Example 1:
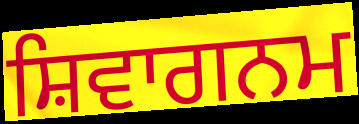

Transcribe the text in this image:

ਸ਼ਿਵਾਗਨਮ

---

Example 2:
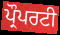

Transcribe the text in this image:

ਪ੍ਰੌਪਰਟੀ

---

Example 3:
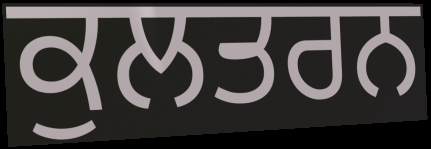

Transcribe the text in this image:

ਕੁਲਤਰਨ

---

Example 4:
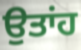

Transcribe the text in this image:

ਉਤਾਂਹ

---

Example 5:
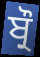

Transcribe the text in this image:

ਬ੍ਰੌ